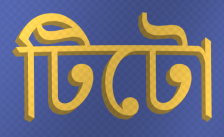
টিটো